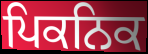
ਪਿਕਨਿਕ